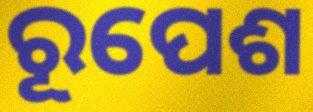
ରୂପେଶ